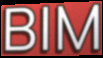
BIM